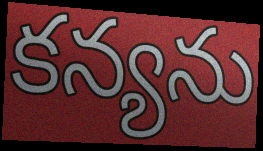
కన్యను